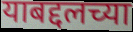
याबद्दलच्या